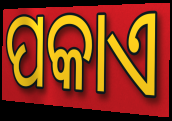
ପକାଏ